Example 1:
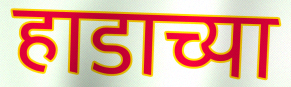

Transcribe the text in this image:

हाडाच्या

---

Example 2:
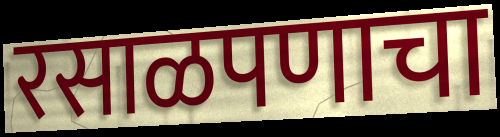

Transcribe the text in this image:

रसाळपणाचा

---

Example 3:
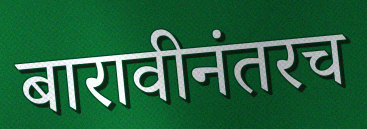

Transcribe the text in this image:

बारावीनंतरच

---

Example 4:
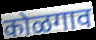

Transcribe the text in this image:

कोळगाव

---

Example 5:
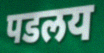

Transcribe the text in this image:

पडलय